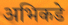
अभिकडे